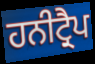
ਹਨੀਟ੍ਰੈਪ